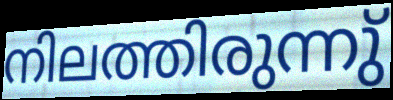
നിലത്തിരുന്നു്